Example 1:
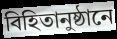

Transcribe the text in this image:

বিহিতানুষ্ঠানে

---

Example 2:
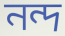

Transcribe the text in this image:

নন্দ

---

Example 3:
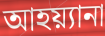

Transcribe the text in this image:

আহয়্যানা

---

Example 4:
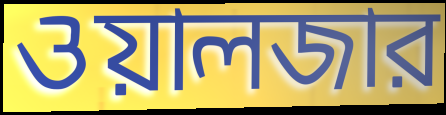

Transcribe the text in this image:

ওয়ালজার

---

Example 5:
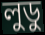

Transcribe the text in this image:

লুডু